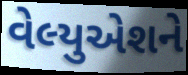
વેલ્યુએશને